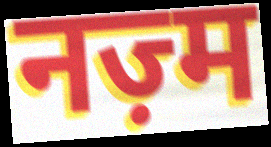
नज़्म